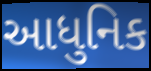
આધુનિક